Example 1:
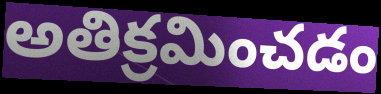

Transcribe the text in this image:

అతిక్రమించడం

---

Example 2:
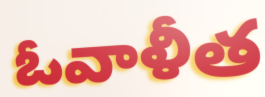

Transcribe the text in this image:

ఓవాళీత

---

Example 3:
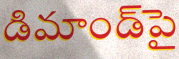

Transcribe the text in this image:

డిమాండ్‌పై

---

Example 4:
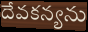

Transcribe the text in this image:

దేవకన్యను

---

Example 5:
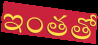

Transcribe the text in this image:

ఇంతతో